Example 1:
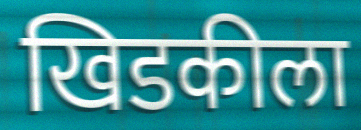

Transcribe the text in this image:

खिडकीला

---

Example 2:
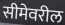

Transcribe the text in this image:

सीमेवरील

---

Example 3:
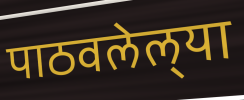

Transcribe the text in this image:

पाठवलेल्या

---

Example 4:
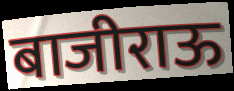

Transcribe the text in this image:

बाजीराऊ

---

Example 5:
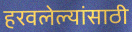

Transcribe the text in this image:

हरवलेल्यांसाठी